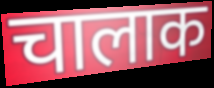
चालाक